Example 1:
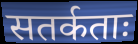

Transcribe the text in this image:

सतर्कताः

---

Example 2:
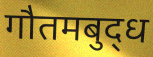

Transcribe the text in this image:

गौतमबुद्ध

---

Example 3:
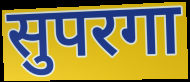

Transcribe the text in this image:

सुपरगा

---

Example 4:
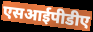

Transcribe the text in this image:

एसआईपीडीए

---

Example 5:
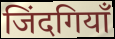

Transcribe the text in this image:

जिंदगियाँ